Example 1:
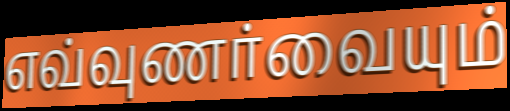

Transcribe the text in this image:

எவ்வுணர்வையும்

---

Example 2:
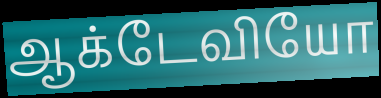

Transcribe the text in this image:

ஆக்டேவியோ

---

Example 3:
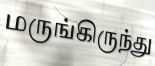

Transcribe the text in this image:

மருங்கிருந்து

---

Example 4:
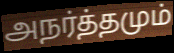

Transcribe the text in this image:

அநர்த்தமும்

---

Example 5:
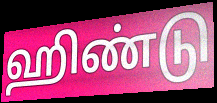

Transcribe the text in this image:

ஹிண்டு